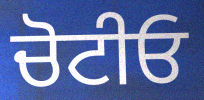
ਚੋਟੀਓ